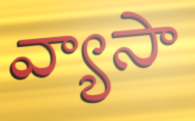
వ్యాసా